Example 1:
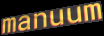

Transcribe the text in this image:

manuum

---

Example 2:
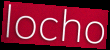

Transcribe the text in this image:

locho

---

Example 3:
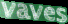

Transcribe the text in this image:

vaves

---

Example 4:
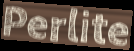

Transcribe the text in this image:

Perlite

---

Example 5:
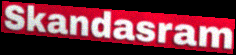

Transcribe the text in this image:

Skandasram